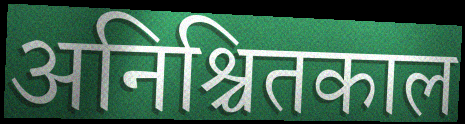
अनिश्चितकाल